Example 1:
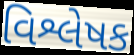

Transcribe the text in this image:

વિશ્લેષક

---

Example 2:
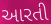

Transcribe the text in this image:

આરતી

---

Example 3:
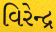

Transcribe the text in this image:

વિરેન્દ્ર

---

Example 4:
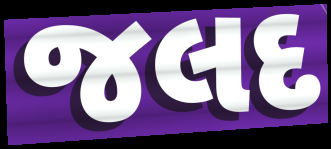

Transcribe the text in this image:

જલદ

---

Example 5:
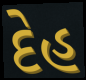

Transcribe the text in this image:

દેહ